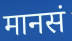
मानसं